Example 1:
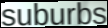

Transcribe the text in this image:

suburbs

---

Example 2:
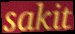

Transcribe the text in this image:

sakit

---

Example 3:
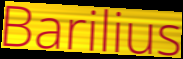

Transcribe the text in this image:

Barilius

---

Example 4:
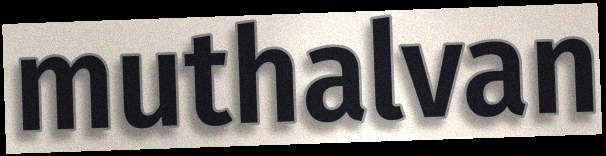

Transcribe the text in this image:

muthalvan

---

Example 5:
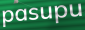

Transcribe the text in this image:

pasupu